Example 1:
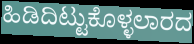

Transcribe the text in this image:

ಹಿಡಿದಿಟ್ಟುಕೊಳ್ಳಲಾರದ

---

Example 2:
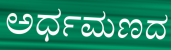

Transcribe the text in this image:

ಅರ್ಧಮಣದ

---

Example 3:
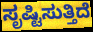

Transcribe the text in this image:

ಸೃಷ್ಟಿಸುತ್ತಿದೆ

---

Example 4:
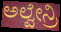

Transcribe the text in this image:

ಅಲ್ವೇನ್ರಿ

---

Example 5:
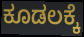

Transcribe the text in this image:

ಕೂಡಲಕ್ಕೆ